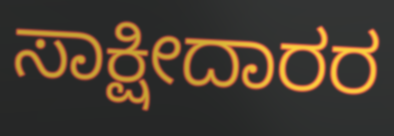
ಸಾಕ್ಷೀದಾರರ